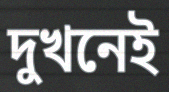
দুখনেই